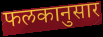
फलकानुसार